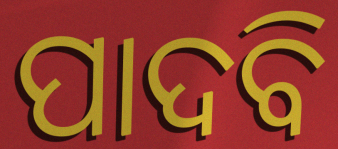
ପାଦବି